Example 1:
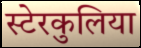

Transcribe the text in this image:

स्टेरकुलिया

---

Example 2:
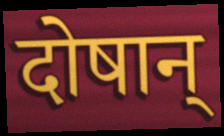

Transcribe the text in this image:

दोषान्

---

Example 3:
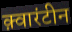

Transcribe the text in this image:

क़्वारंटीन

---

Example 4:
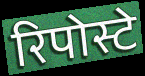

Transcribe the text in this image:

रिपोस्टे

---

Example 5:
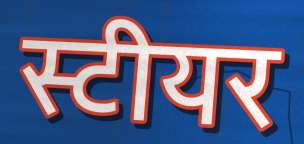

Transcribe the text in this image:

स्टीयर